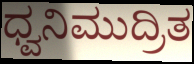
ಧ್ವನಿಮುದ್ರಿತ